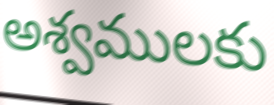
అశ్వములకు